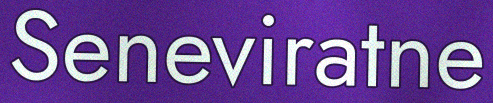
Seneviratne